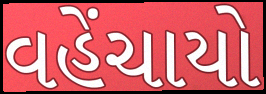
વહેંચાયો